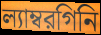
ল্যাম্বরগিনি